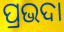
ପ୍ରଭଦା